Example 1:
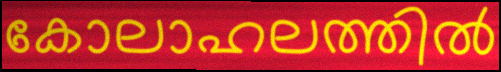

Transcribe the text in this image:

കോലാഹലത്തിൽ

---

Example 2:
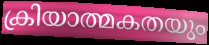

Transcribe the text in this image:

ക്രിയാത്മകതയും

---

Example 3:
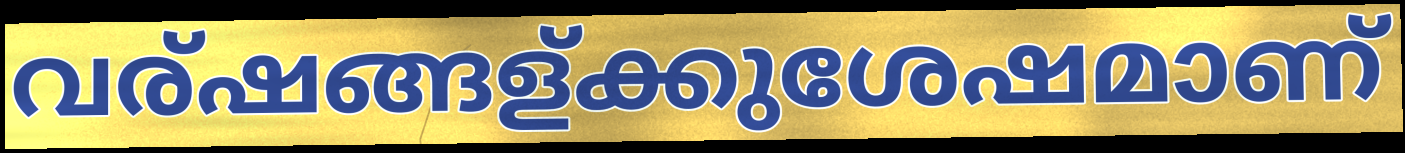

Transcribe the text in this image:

വര്ഷങ്ങള്ക്കുശേഷമാണ്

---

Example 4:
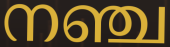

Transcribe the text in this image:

നഞ്ച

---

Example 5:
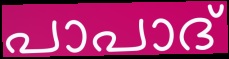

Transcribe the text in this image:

പാപാദ്